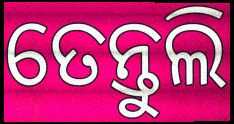
ତେନ୍ତୁଲି